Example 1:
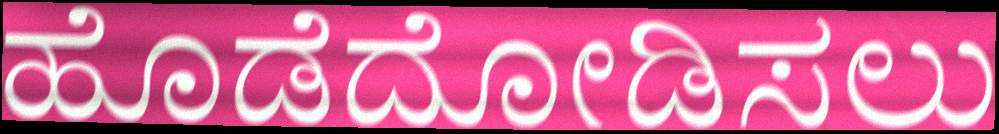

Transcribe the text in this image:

ಹೊಡೆದೋಡಿಸಲು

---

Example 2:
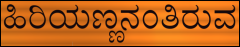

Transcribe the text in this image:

ಹಿರಿಯಣ್ಣನಂತಿರುವ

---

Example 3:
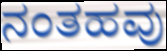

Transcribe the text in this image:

ನಂತಹವು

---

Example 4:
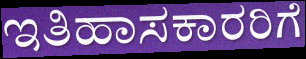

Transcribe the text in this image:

ಇತಿಹಾಸಕಾರರಿಗೆ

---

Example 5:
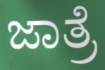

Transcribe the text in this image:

ಜಾತ್ರೆ